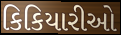
કિકિયારીઓ